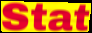
Stat